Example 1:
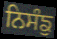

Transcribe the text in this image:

ਨਿਸੰਙੁ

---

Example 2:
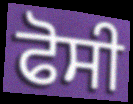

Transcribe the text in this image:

ਫੋਸੀ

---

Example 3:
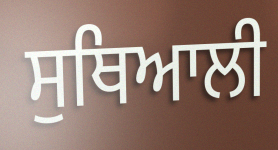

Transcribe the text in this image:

ਸੁਥਿਆਲੀ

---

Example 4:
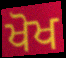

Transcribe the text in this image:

ਖੋਖ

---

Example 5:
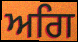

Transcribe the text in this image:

ਅਗਿ